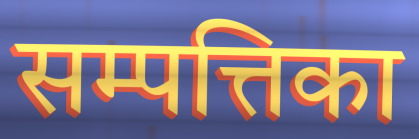
सम्पत्तिका